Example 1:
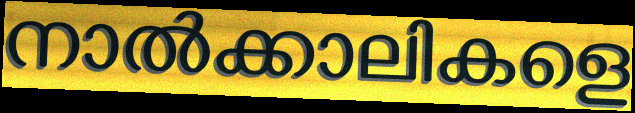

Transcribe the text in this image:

നാൽക്കാലികളെ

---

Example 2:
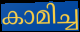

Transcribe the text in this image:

കാമിച്ച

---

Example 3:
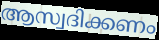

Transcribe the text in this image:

ആസ്വദിക്കണം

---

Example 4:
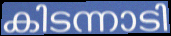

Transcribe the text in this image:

കിടന്നാടി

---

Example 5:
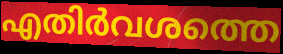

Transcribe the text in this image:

എതിർവശത്തെ